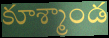
కూశ్మాండ